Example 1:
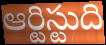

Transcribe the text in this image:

ఆర్టిస్టుది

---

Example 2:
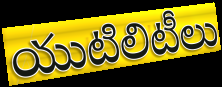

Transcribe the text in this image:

యుటిలిటీలు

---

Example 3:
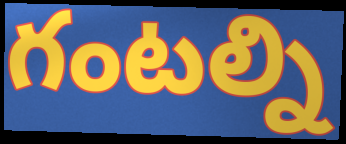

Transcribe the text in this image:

గంటల్ని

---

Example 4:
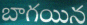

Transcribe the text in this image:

బాగయిన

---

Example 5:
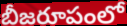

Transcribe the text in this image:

బీజరూపంలో